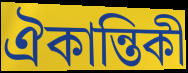
ঐকান্তিকী